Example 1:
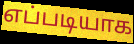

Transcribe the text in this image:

எப்படியாக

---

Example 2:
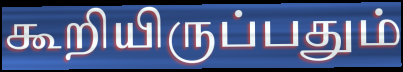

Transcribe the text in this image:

கூறியிருப்பதும்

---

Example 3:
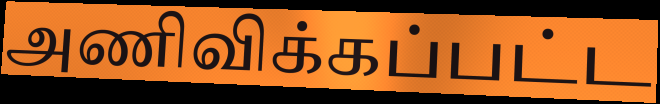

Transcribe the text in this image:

அணிவிக்கப்பட்ட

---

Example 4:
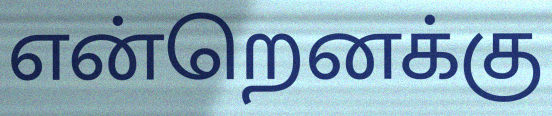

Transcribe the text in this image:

என்றெனக்கு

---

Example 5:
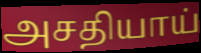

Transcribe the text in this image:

அசதியாய்